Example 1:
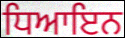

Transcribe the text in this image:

ਧਿਆਇਨ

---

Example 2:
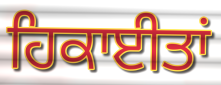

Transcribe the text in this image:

ਹਿਕਾਈਤਾਂ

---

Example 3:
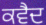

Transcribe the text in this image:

ਕਵੈਦ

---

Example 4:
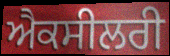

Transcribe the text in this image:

ਐਕਸੀਲਰੀ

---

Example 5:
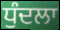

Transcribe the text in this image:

ਧੁੰਦਲਾ